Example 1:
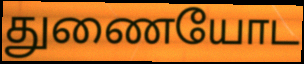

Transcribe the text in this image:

துணையோட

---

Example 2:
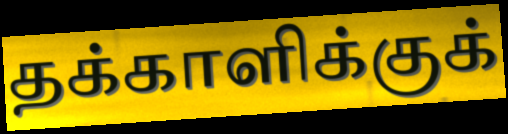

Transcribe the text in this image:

தக்காளிக்குக்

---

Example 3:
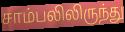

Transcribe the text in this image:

சாம்பலிலிருந்து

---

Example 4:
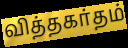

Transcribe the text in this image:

வித்தகர்தம்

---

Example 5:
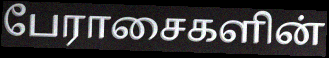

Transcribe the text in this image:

பேராசைகளின்